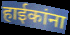
हाईकांना